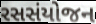
રસસંયોજન